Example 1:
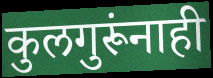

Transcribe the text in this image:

कुलगुरूंनाही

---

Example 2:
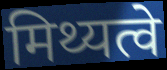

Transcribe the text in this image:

मिथ्यत्वे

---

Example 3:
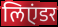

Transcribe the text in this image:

लिएंडर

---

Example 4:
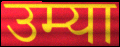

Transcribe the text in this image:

उम्या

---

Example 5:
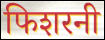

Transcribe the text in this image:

फिशरनी